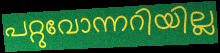
പറ്റുവോന്നറിയില്ല